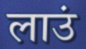
लाउं